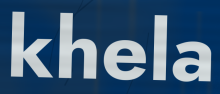
khela